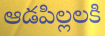
ఆడపిల్లలకి